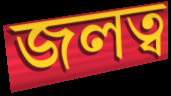
জলত্ব